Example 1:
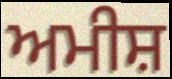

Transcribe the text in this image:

ਅਮੀਸ਼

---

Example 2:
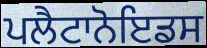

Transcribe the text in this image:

ਪਲੈਟਾਨੋਇਡਸ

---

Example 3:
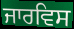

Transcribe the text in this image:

ਜਾਰਵਿਸ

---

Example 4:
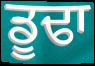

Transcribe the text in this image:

ਡੂਢਾ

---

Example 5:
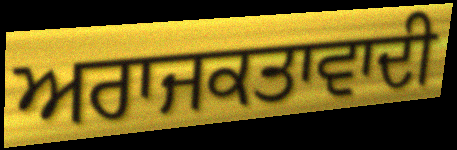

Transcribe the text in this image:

ਅਰਾਜਕਤਾਵਾਦੀ